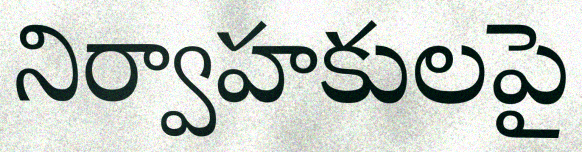
నిర్వాహకులపై